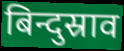
बिन्दुस्राव